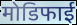
मोडिफाई